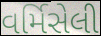
વર્મિસેલી